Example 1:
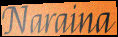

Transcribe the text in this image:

Naraina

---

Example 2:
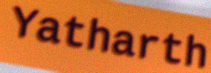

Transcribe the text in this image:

Yatharth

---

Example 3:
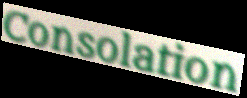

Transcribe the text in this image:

Consolation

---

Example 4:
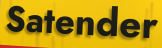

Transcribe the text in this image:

Satender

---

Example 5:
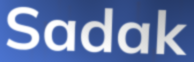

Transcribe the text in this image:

Sadak